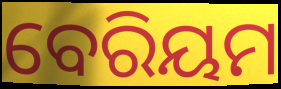
ବେରିୟମ